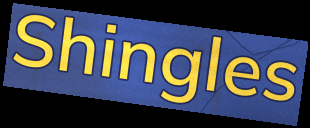
Shingles